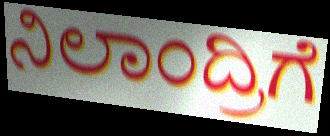
ನಿಲಾಂದ್ರಿಗೆ